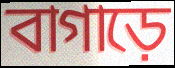
বাগাড়ে